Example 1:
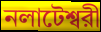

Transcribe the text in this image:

নলাটেশ্বরী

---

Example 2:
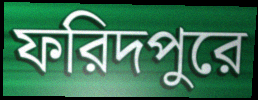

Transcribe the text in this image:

ফরিদপুরে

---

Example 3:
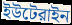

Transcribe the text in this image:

ইউটেরাইন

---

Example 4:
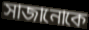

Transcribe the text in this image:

সাজানোকে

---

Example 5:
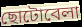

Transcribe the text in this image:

ছোটোবেলা